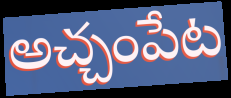
అచ్చంపేట